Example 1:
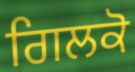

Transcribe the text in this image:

ਗਿਲਕੋ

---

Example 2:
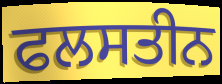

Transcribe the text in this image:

ਫਲਸਤੀਨ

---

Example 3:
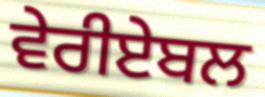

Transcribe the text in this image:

ਵੇਰੀਏਬਲ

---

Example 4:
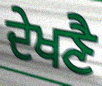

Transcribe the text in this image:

ਦੇਖਣੈ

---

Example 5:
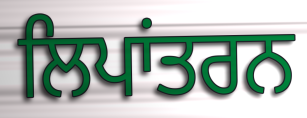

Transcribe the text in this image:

ਲਿਪਾਂਤਰਨ